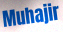
Muhajir